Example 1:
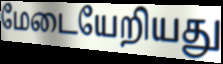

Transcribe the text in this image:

மேடையேறியது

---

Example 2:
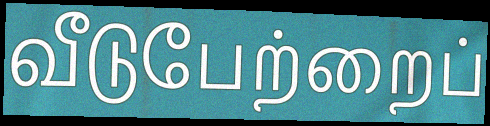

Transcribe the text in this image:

வீடுபேற்றைப்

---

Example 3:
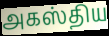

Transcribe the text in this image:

அகஸ்திய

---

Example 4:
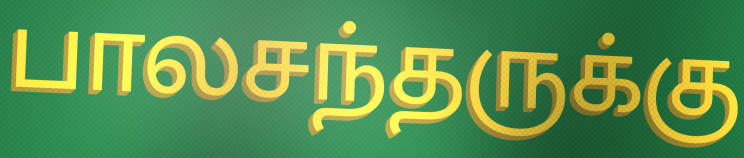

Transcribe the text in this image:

பாலசந்தருக்கு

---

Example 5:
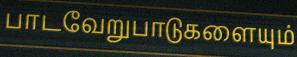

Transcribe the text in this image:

பாடவேறுபாடுகளையும்